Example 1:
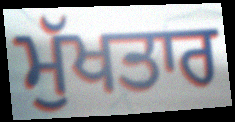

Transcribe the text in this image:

ਮੁੱਖਤਾਰ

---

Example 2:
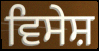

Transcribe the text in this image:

ਵਿਸੇਸ਼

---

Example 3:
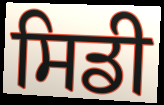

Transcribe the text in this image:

ਸਿਡੀ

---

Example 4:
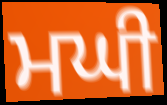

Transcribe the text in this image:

ਮਘੀ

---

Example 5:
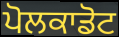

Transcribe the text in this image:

ਪੋਲਕਾਡੋਟ